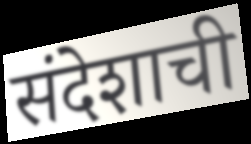
संदेशाची